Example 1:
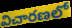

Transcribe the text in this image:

విచారణలో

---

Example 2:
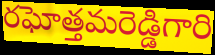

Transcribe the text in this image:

రఘోత్తమరెడ్డిగారి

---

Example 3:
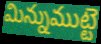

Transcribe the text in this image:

మిన్నుముట్టె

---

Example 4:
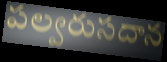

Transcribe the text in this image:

పల్వరుసదాన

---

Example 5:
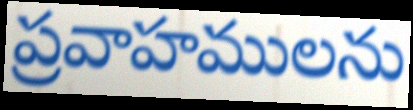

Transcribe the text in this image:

ప్రవాహములను